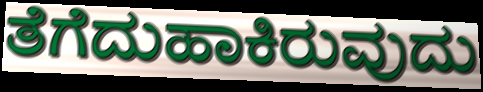
ತೆಗೆದುಹಾಕಿರುವುದು